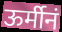
ऊर्मीनं